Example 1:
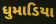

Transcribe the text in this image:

ધુમાડિયા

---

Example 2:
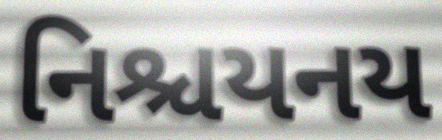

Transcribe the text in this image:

નિશ્ચયનય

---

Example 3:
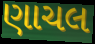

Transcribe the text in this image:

ણાચલ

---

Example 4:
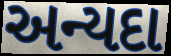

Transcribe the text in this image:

અન્યદા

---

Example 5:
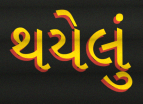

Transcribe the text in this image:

થયેલું